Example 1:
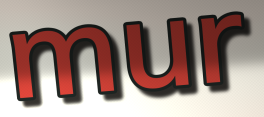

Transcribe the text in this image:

mur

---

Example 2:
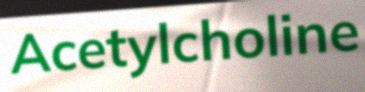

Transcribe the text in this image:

Acetylcholine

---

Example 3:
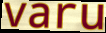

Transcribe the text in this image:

varu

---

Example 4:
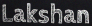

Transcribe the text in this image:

Lakshan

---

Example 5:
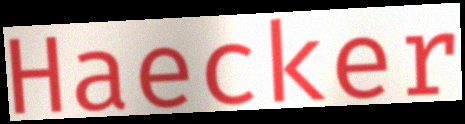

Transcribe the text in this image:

Haecker